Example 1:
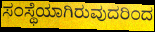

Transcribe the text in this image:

ಸಂಸ್ಥೆಯಾಗಿರುವುದರಿಂದ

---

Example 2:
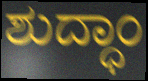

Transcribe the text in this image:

ಶುದ್ಧಾಂ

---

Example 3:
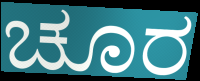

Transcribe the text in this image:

ಚೂರ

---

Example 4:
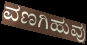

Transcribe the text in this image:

ವಣಗಿಹುವು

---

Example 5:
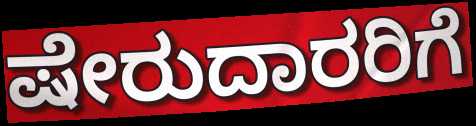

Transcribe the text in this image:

ಷೇರುದಾರರಿಗೆ